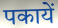
पकायें